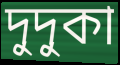
দুদুকা